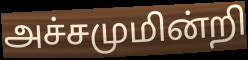
அச்சமுமின்றி